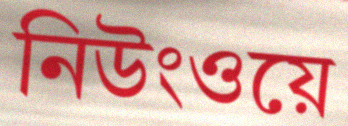
নিউংওয়ে